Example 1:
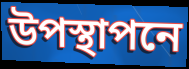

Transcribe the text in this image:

উপস্থাপনে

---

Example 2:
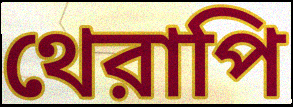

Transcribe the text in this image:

থেরাপি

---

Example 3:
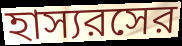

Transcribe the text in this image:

হাস্যরসের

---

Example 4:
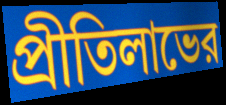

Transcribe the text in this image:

প্রীতিলাভের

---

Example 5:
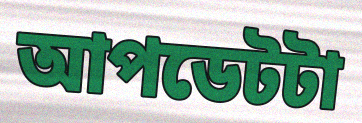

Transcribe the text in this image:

আপডেটটা